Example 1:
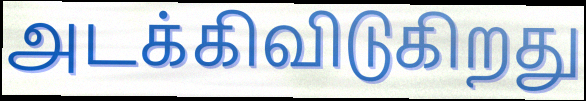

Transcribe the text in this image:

அடக்கிவிடுகிறது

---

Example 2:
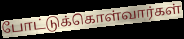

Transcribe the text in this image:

போட்டுக்கொள்வார்கள்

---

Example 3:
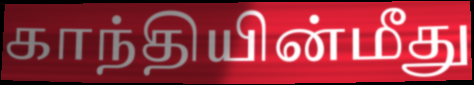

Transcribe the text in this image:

காந்தியின்மீது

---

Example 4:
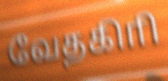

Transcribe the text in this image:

வேதகிரி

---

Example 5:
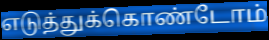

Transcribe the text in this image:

எடுத்துக்கொண்டோம்